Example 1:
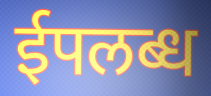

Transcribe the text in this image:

ईपलब्ध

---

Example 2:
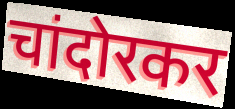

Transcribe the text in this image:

चांदोरकर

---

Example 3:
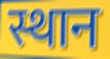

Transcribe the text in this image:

स्थान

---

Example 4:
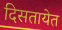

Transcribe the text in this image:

दिसतायेत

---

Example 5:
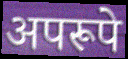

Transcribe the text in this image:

अपरूपे